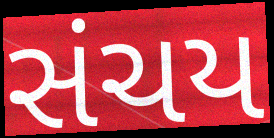
સંચય